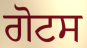
ਗੋਟਸ